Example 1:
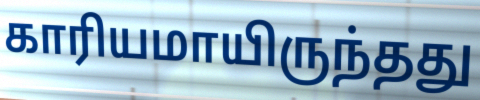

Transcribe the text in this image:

காரியமாயிருந்தது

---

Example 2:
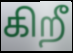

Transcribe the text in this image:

கிறீ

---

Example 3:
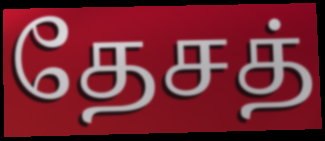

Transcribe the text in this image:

தேசத்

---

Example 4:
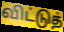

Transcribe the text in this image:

விட்டுத்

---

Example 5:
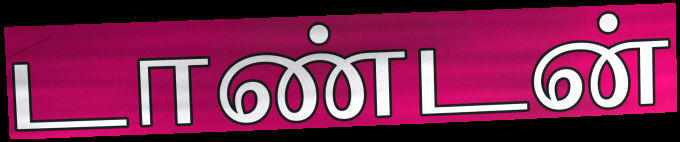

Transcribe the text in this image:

டாண்டன்